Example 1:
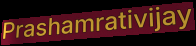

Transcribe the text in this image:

Prashamrativijay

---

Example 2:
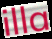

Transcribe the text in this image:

illa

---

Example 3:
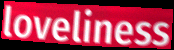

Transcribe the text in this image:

loveliness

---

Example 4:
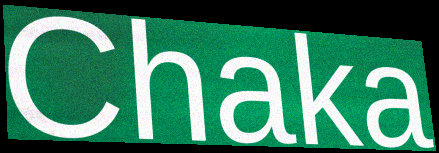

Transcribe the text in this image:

Chaka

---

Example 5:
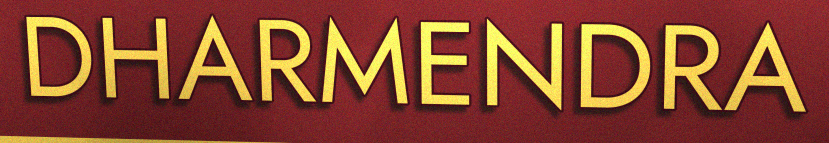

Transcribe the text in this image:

DHARMENDRA